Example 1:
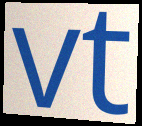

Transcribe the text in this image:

vt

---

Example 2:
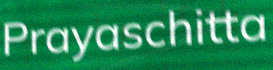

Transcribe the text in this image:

Prayaschitta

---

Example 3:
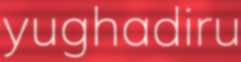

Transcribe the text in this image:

yughadiru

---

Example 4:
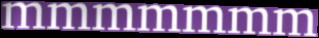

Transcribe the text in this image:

mmmmmmm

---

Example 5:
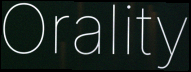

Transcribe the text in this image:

Orality